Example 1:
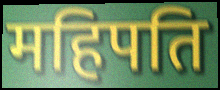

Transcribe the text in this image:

महिपति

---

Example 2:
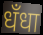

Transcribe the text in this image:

धँधा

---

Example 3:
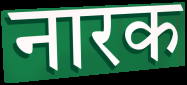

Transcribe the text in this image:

नारक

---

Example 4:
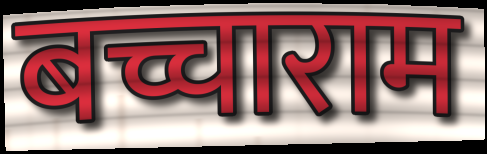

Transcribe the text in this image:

बच्चाराम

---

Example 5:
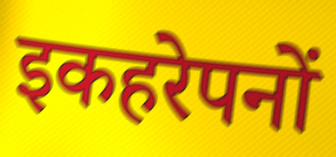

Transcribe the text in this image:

इकहरेपनों